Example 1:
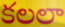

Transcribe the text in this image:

కలలా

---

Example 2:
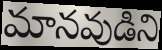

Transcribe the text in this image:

మానవుడిని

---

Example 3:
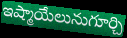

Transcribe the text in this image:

ఇష్మాయేలునుగూర్చి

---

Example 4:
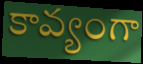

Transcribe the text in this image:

కావ్యంగా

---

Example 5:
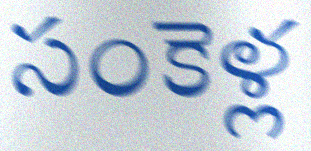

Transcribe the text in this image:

సంకెళ్ల